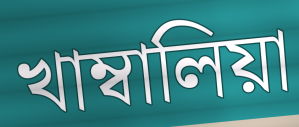
খাম্বালিয়া